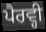
ਪੈਰਵ੍ਹੀ